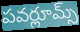
పవర్లూమ్స్